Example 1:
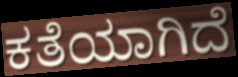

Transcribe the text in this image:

ಕತೆಯಾಗಿದೆ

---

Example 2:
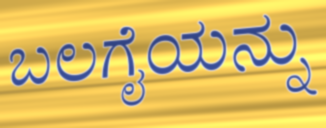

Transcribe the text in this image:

ಬಲಗೈಯನ್ನು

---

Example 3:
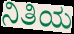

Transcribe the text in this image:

ನಿತಿಯ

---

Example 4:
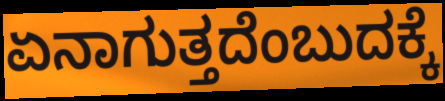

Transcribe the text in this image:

ಏನಾಗುತ್ತದೆಂಬುದಕ್ಕೆ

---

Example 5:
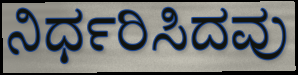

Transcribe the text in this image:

ನಿರ್ಧರಿಸಿದವು